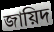
জায়িদ